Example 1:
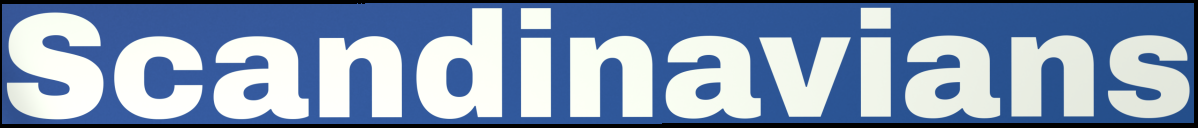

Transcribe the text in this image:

Scandinavians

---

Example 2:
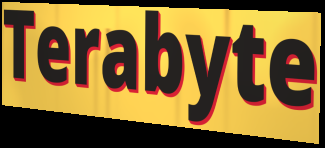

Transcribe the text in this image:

Terabyte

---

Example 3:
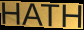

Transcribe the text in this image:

HATH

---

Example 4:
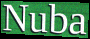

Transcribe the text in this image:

Nuba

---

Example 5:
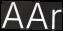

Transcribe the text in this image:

AAr